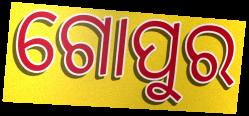
ଗୋପୁର